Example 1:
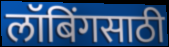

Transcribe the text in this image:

लॉबिंगसाठी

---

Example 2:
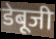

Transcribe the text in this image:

डेबूजी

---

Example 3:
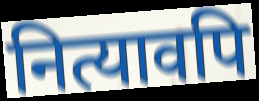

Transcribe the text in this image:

नित्यावपि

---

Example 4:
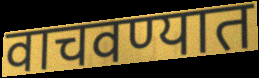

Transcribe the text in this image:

वाचवण्यात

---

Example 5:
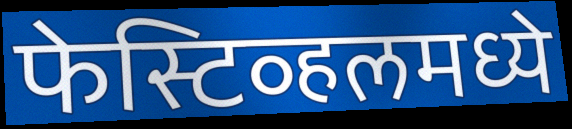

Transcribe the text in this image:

फेस्टिव्हलमध्ये